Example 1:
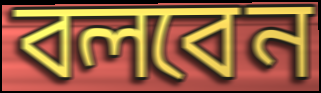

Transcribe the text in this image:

বলবেন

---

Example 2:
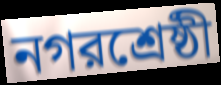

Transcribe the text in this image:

নগরশ্রেষ্ঠী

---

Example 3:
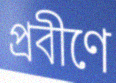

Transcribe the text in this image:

প্রবীণে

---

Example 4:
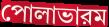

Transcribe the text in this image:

পোলাভারম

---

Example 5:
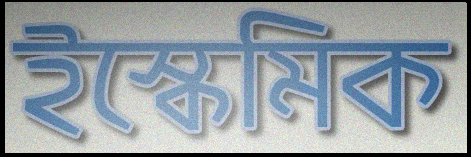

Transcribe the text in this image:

ইস্কেমিক